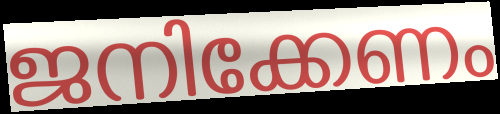
ജനിക്കേണം